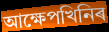
আক্ষেপখিনিৰ